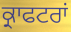
ਕ੍ਰਾਫਟਰਾਂ